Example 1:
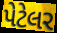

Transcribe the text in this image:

પેટેલર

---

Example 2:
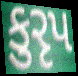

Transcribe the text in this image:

કુરૃપ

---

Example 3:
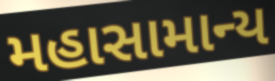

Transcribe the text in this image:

મહાસામાન્ય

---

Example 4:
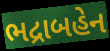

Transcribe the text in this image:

ભદ્રાબહેન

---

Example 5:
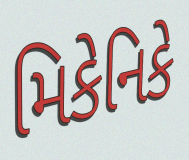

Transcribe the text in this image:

મિકેનિકે